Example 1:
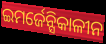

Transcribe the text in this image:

ଇମର୍ଜେନ୍ସିକାଳୀନ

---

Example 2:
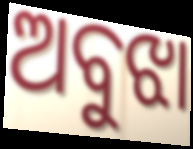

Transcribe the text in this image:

ଅବୁଝା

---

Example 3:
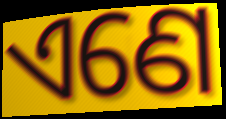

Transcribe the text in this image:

ଏଣେ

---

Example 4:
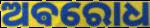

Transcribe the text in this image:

ଅଵରୋଧ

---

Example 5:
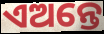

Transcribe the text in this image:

ଏଅନ୍ତେ